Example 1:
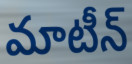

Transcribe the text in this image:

మాటీన్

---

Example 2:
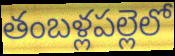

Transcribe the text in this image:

తంబళ్లపల్లెలో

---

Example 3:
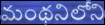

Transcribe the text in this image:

మంథనిలోని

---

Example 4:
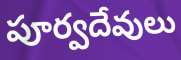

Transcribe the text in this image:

పూర్వదేవులు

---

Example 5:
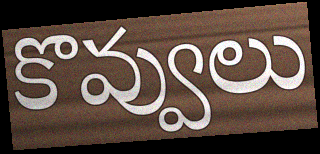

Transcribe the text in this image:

కొవ్వులు